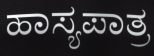
ಹಾಸ್ಯಪಾತ್ರ